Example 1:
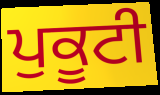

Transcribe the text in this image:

ਪੁਕੂਟੀ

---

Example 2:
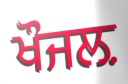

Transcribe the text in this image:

ਖੌਜਲ਼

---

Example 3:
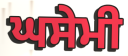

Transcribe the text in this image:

ਘਸੇਮੀ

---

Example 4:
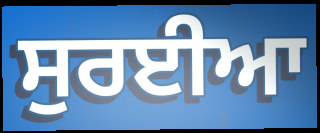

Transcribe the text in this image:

ਸੁਰਈਆ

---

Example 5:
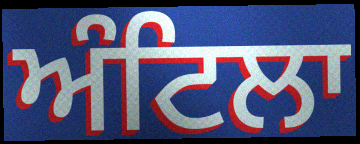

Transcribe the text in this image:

ਅੰਟਿਲਾ